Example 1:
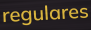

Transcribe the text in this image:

regulares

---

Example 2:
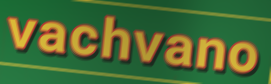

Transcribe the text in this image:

vachvano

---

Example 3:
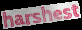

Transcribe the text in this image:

harshest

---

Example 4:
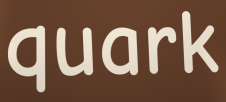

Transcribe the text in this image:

quark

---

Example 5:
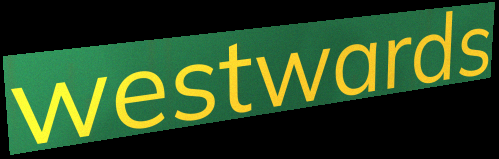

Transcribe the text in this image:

westwards